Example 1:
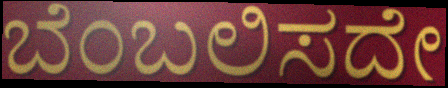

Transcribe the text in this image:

ಬೆಂಬಲಿಸದೇ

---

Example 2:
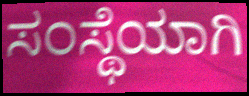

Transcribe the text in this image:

ಸಂಸ್ಥೆಯಾಗಿ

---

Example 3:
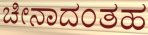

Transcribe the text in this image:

ಚೀನಾದಂತಹ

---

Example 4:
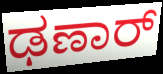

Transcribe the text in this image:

ಢಣಾರ್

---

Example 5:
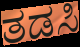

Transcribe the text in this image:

ತಡಸಿ